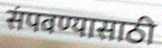
संपवण्यासाठी